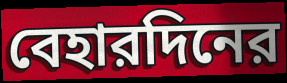
বেহারদিনের